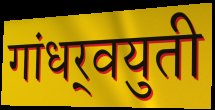
गांधर्वयुती